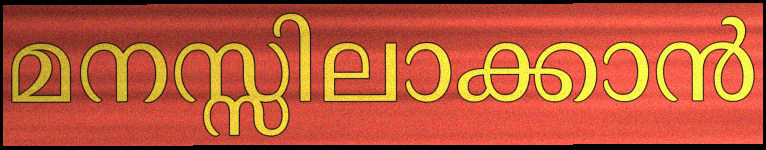
മനസ്സിലാക്കാൻ